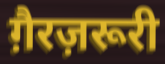
ग़ैरज़रूरी